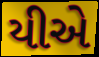
યીએ